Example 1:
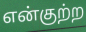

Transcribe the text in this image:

என்குற்ற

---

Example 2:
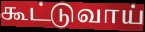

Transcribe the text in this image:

கூட்டுவாய்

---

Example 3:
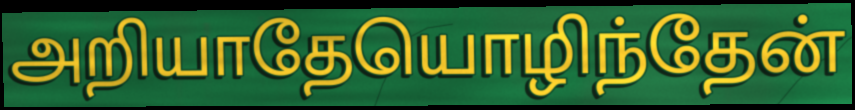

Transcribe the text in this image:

அறியாதேயொழிந்தேன்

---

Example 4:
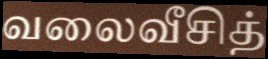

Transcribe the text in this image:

வலைவீசித்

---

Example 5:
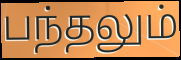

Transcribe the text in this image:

பந்தலும்